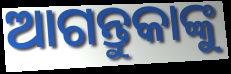
ଆଗନ୍ତୁକାଙ୍କୁ